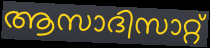
ആസാദിസാറ്റ്